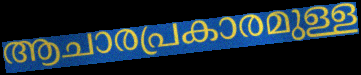
ആചാരപ്രകാരമുള്ള